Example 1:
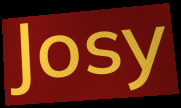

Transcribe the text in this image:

Josy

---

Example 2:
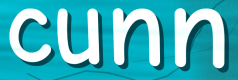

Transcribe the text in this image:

cunn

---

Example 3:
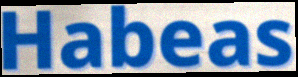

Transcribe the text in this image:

Habeas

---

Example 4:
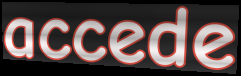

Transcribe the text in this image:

accede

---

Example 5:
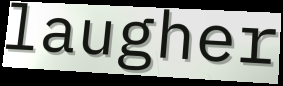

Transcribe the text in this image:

laugher